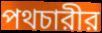
পথচারীর